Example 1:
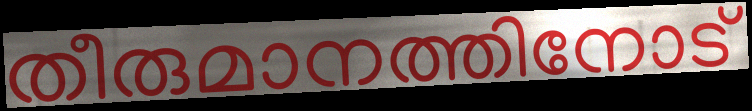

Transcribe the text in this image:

തീരുമാനത്തിനോട്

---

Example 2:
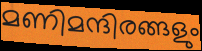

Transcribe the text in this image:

മണിമന്ദിരങ്ങളും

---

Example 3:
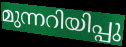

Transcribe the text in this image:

മുന്നറിയിപ്പു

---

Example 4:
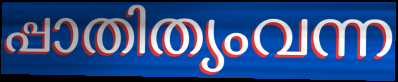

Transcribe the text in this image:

പ്പാതിത്യംവന്ന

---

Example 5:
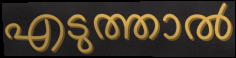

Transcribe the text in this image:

എടുത്താൽ